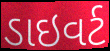
ડાઇવર્ટ